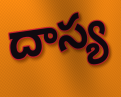
దాస్య